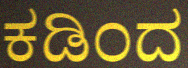
ಕಡಿಂದ